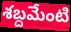
శబ్దమేంటి